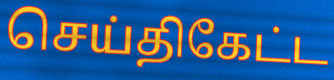
செய்திகேட்ட